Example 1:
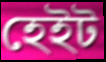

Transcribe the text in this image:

হেইট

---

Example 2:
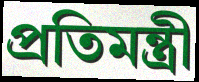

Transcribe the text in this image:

প্রতিমন্ত্রী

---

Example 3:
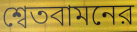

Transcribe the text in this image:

শ্বেতবামনের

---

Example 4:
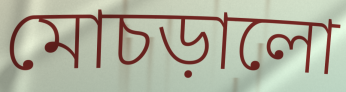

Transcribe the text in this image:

মোচড়ালো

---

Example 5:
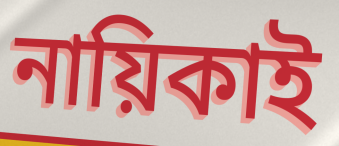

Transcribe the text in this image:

নায়িকাই